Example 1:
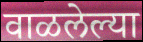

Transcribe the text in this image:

वाळलेल्या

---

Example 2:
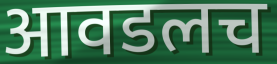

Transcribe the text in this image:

आवडलच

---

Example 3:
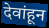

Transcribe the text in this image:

देवांहून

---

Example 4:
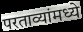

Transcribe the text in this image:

परताव्यांमध्ये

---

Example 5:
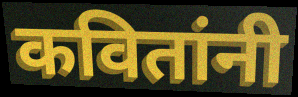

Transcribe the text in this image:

कवितांनी